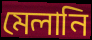
মেলানি